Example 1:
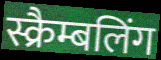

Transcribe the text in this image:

स्क्रैम्बलिंग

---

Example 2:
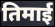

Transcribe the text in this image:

तिमाई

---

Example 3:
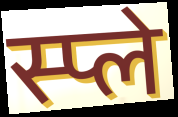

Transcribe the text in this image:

स्प्ले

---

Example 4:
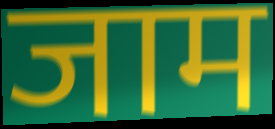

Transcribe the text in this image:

जाम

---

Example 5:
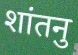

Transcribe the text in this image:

शांतनु